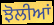
ਝੋਲੀਆਂ